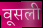
वूसली